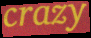
crazy